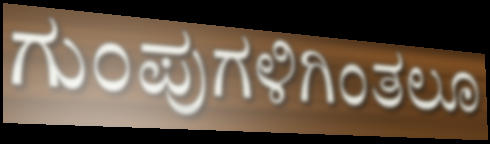
ಗುಂಪುಗಳಿಗಿಂತಲೂ